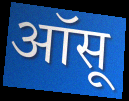
ऑसू